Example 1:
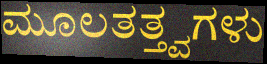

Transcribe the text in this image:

ಮೂಲತತ್ತ್ವಗಳು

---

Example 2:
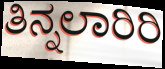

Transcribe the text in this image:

ತಿನ್ನಲಾರಿರಿ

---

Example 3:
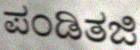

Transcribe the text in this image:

ಪಂಡಿತಜಿ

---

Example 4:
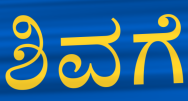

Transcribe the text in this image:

ಶಿವಗೆ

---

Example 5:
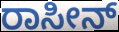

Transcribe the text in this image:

ರಾಸೀನ್